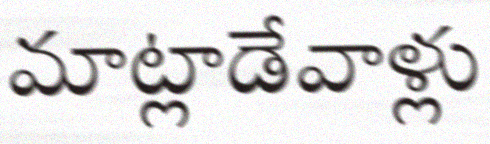
మాట్లాడేవాళ్లు